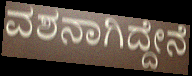
ವಶನಾಗಿದ್ದೇನೆ